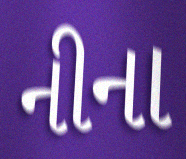
નીના